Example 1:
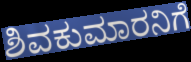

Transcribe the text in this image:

ಶಿವಕುಮಾರನಿಗೆ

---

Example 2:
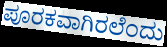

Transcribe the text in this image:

ಪೂರಕವಾಗಿರಲೆಂದು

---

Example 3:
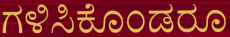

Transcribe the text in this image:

ಗಳಿಸಿಕೊಂಡರೂ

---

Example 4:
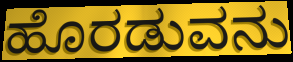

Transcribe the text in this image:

ಹೊರಡುವನು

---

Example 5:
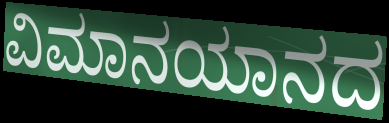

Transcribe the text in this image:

ವಿಮಾನಯಾನದ